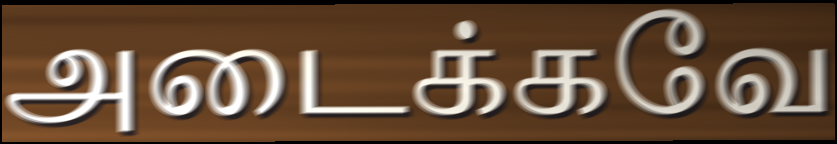
அடைக்கவே